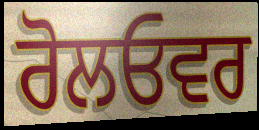
ਰੋਲਓਵਰ